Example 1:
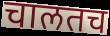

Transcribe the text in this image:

चालतच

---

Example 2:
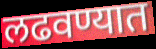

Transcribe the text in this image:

लढवण्यात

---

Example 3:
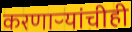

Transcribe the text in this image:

करणाऱ्यांचीही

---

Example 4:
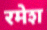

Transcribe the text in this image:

रमेश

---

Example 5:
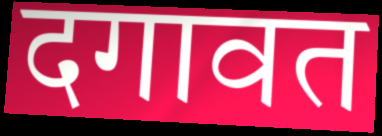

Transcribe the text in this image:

दगावत